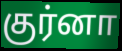
குர்னா